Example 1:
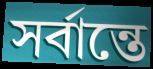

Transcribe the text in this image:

সর্বান্তে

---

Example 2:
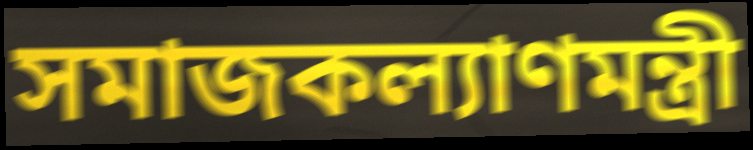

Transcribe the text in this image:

সমাজকল্যাণমন্ত্রী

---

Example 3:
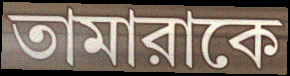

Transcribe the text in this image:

তামারাকে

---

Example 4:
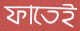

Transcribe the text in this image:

ফাতেই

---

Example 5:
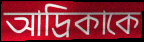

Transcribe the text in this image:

আদ্রিকাকে